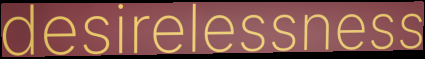
desirelessness